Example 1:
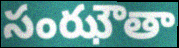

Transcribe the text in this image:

సంఝౌతా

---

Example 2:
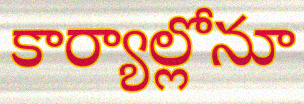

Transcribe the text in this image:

కార్యాల్లోనూ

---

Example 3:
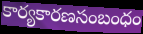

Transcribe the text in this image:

కార్యకారణసంబంధం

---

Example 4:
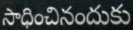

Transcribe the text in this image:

సాధించినందుకు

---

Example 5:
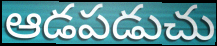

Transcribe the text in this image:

ఆడపడుచు